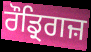
ਰੌਡ੍ਰਿਗਜ਼